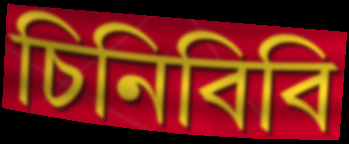
চিনিবিবি